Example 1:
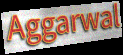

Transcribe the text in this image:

Aggarwal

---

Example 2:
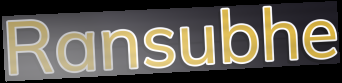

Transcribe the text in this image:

Ransubhe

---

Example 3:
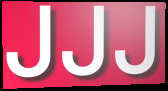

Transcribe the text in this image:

JJJ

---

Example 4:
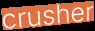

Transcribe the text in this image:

crusher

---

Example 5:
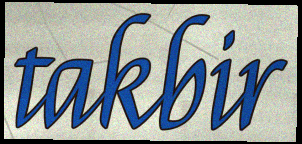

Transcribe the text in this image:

takbir